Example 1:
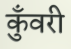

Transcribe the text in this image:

कुँवरी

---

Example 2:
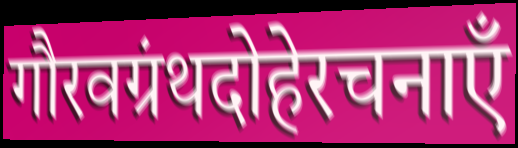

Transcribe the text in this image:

गौरवग्रंथदोहेरचनाएँ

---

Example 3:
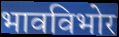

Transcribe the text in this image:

भावविभोर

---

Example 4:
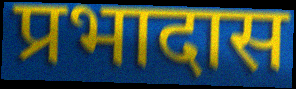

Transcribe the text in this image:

प्रभादास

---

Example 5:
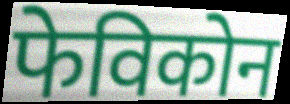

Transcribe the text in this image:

फेविकोन